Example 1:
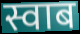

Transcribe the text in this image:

स्वाब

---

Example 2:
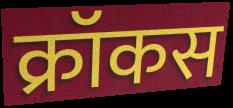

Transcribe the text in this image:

क्रॉकस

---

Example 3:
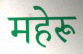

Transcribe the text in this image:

महेरू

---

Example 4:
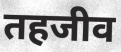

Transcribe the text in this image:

तहजीव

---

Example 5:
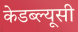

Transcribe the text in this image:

केडब्ल्यूसी